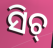
ସିଚ୍